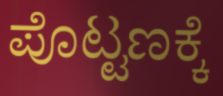
ಪೊಟ್ಟಣಕ್ಕೆ